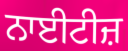
ਨਾਈਟੀਜ਼